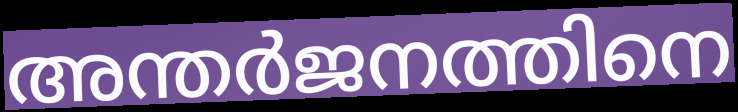
അന്തർജനത്തിനെ